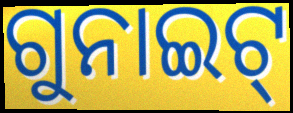
ଗୁନାଇଟ୍